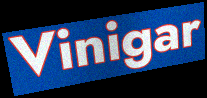
Vinigar